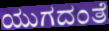
ಯುಗದಂತೆ